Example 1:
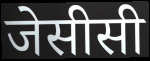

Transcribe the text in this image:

जेसीसी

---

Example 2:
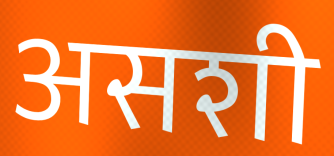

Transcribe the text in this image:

असशी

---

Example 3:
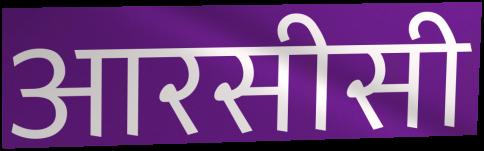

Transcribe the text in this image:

आरसीसी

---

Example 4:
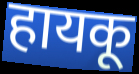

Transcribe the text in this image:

हायकू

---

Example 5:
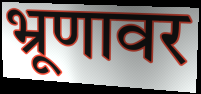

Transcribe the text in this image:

भ्रूणावर